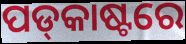
ପଡ୍‌କାଷ୍ଟରେ